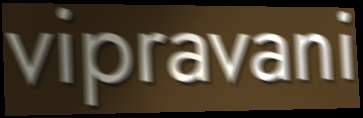
vipravani